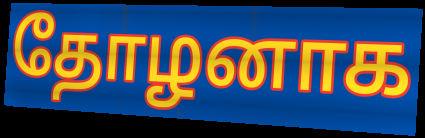
தோழனாக